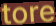
tore